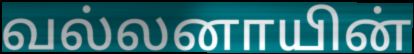
வல்லனாயின்